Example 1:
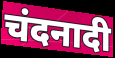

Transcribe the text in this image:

चंदनादी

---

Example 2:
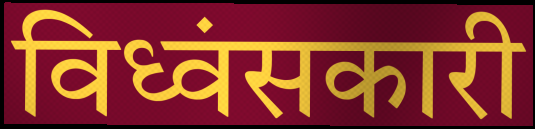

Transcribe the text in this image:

विध्वंसकारी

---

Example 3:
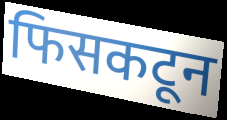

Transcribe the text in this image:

फिसकटून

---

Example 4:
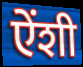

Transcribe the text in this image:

ऐंशी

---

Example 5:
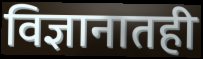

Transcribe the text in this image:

विज्ञानातही